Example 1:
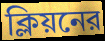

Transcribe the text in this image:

ক্লিয়নের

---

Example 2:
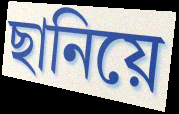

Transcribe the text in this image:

ছানিয়ে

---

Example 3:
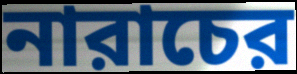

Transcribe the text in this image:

নারাচের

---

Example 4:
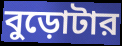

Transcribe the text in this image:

বুড়োটার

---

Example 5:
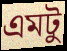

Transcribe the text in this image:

এমটু